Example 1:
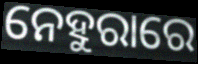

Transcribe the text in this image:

ନେହୁରାରେ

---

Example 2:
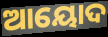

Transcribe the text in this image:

ଆୟୋଦ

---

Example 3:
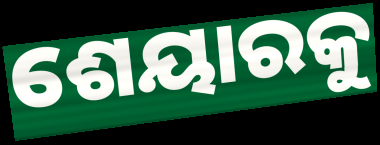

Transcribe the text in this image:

ଶେୟାରକୁ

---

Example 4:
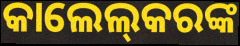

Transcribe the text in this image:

କାଲେଲ୍‌କରଙ୍କ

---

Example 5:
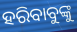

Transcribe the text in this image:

ହରିବାବୁଙ୍କୁ